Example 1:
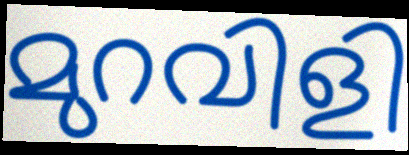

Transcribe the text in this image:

മുറവിളി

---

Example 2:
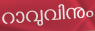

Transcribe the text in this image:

റാവുവിനും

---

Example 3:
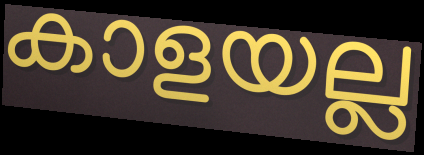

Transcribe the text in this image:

കാളയല്ല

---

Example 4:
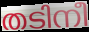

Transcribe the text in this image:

തടിനീ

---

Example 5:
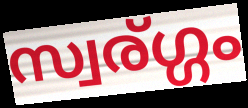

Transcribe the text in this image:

സ്വര്ഗ്ഗം